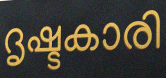
ദൃഷ്ടകാരി